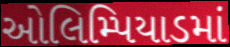
ઓલિમ્પિયાડમાં